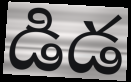
డిడ